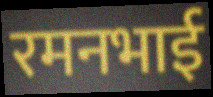
रमनभाई